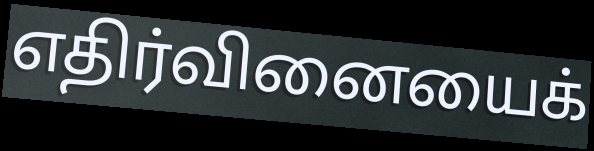
எதிர்வினையைக்